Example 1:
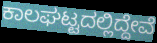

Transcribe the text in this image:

ಕಾಲಘಟ್ಟದಲ್ಲಿದ್ದೇವೆ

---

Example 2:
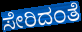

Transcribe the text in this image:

ಸೇರಿದಂತೆ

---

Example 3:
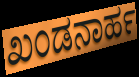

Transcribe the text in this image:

ಖಂಡನಾರ್ಹ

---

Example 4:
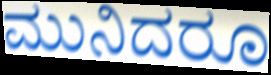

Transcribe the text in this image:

ಮುನಿದರೂ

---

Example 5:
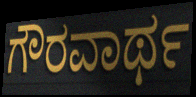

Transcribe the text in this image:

ಗೌರವಾರ್ಥ